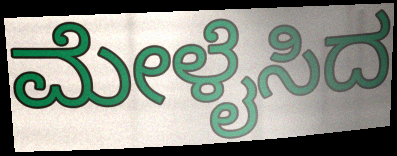
ಮೇಳೈಸಿದ